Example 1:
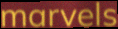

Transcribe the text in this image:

marvels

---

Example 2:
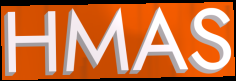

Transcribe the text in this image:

HMAS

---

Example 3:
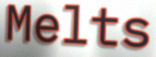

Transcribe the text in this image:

Melts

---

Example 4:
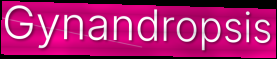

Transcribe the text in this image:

Gynandropsis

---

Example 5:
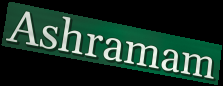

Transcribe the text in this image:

Ashramam